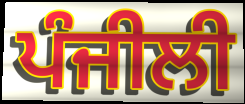
ਪੰਜੀਲੀ